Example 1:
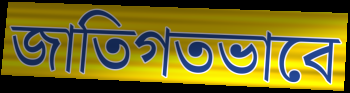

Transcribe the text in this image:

জাতিগতভাবে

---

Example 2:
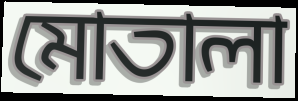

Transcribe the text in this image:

মোতালা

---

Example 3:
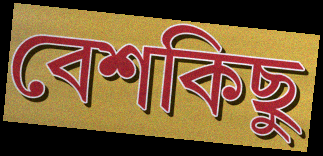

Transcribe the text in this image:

বেশকিছু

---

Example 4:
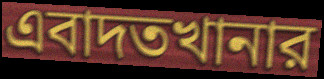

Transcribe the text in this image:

এবাদতখানার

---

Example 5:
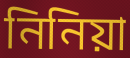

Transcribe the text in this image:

নিনিয়া